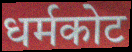
धर्मकोट